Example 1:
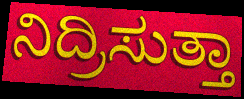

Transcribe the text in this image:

ನಿದ್ರಿಸುತ್ತಾ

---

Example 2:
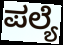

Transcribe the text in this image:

ಪಲ್ಯೆ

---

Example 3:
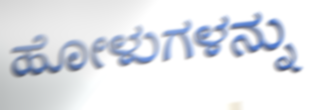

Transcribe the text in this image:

ಹೋಳುಗಳನ್ನು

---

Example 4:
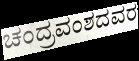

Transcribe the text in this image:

ಚಂದ್ರವಂಶದವರ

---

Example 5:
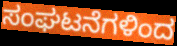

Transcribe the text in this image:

ಸಂಘಟನೆಗಳಿಂದ